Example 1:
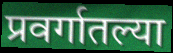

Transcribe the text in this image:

प्रवर्गातल्या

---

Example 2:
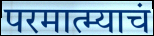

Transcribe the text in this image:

परमात्म्याचं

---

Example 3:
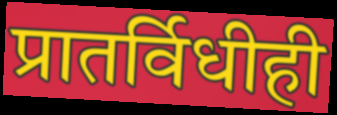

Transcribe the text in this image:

प्रातर्विधीही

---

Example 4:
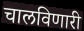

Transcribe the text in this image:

चालविणारी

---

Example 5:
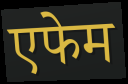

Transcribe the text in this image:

एफेम